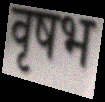
वृषभ